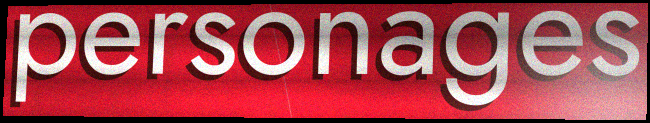
personages